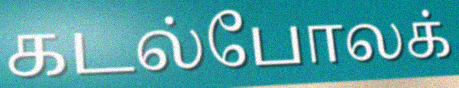
கடல்போலக்